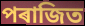
পৰাজিত